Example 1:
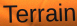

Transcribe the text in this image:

Terrain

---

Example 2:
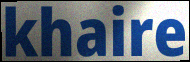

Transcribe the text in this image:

khaire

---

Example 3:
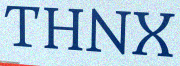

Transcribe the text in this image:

THNX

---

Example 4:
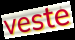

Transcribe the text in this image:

veste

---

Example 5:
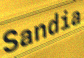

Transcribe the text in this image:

Sandia